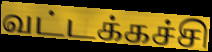
வட்டக்கச்சி